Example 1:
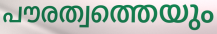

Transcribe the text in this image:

പൗരത്വത്തെയും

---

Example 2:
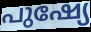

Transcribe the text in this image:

പുഷ്യേ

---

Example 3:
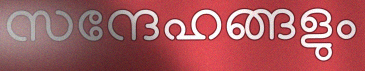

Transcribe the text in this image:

സന്ദേഹങ്ങളും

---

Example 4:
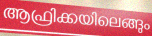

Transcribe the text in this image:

ആഫ്രിക്കയിലെങ്ങും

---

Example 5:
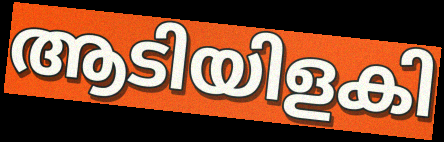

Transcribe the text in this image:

ആടിയിളകി